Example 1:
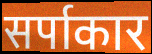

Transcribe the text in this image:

सर्पाकार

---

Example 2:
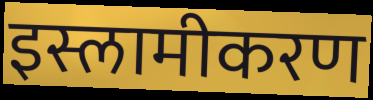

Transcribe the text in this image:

इस्लामीकरण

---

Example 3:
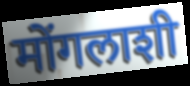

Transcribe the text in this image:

मोंगलाशी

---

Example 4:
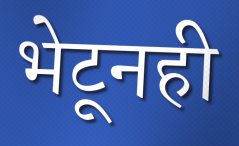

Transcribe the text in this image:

भेटूनही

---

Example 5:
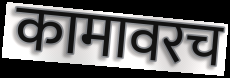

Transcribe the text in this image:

कामावरच